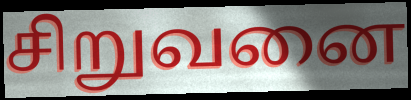
சிறுவனை